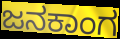
ಜನಕಾಂಗ